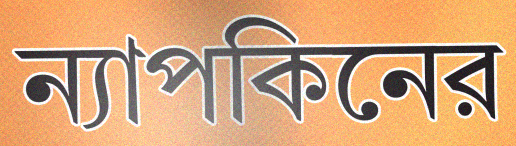
ন্যাপকিনের